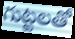
గుట్టలతో